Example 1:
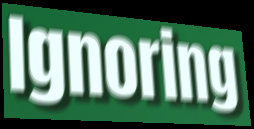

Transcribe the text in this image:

Ignoring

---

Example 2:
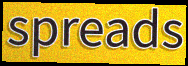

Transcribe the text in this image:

spreads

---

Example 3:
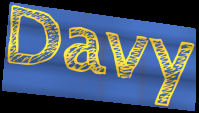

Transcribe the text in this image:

Davy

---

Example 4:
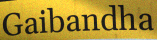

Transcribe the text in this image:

Gaibandha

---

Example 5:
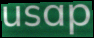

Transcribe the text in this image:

usap